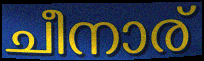
ചീനാര്